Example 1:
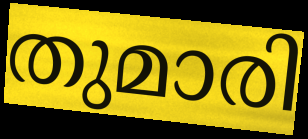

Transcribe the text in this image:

തുമാരി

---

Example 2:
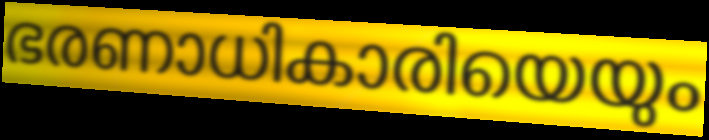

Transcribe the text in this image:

ഭരണാധികാരിയെയും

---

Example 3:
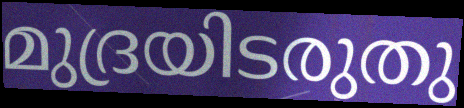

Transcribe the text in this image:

മുദ്രയിടരുതു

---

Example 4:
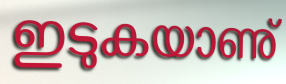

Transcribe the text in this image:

ഇടുകയാണു്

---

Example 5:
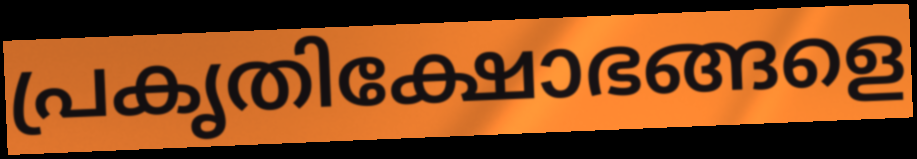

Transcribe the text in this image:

പ്രകൃതിക്ഷോഭങ്ങളെ